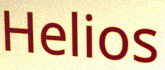
Helios